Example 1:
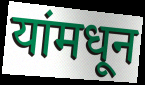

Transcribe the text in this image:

यांमधून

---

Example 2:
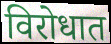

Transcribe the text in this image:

विरोधात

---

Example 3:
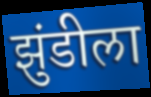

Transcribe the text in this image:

झुंडीला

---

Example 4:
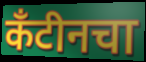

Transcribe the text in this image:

कँटीनचा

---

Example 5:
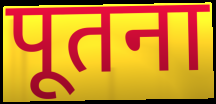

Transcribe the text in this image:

पूतना